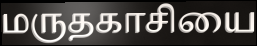
மருதகாசியை